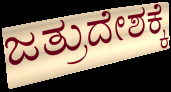
ಜತ್ರುದೇಶಕ್ಕೆ